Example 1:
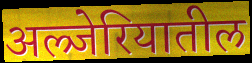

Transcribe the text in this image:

अल्जेरियातील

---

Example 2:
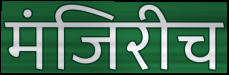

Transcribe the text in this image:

मंजिरीच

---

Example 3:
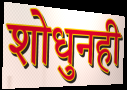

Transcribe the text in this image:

शोधुनही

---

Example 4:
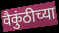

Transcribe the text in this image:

वैकुंठीच्या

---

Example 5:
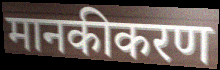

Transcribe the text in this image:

मानकीकरण